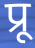
प्रू